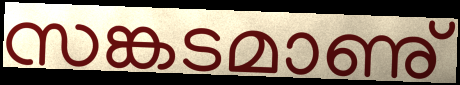
സങ്കടമാണു്